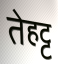
तेहट्ट